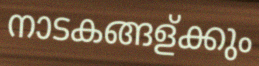
നാടകങ്ങള്ക്കും